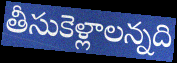
తీసుకెళ్లాలన్నది